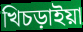
খিচড়াইয়া